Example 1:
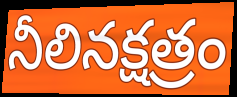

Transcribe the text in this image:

నీలినక్షత్రం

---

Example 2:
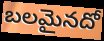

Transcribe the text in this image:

బలమైనదో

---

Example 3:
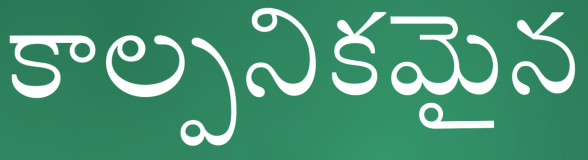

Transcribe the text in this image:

కాల్పనికమైన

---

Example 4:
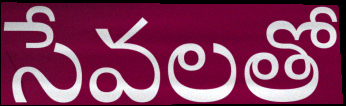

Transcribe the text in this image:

సేవలతో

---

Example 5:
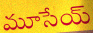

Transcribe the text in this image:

మూసేయ్